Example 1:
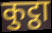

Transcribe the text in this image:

कुट्ठा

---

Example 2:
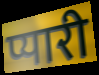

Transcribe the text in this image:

प्यारी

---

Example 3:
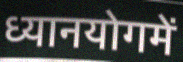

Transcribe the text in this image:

ध्यानयोगमें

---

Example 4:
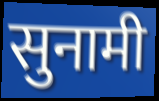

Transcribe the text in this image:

सुनामी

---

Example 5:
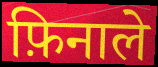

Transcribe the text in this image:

फ़िनाले